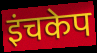
इंचकेप